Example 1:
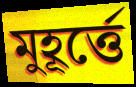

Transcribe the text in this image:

মুহূর্ত্তে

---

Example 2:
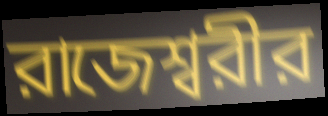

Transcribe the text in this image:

রাজেশ্বরীর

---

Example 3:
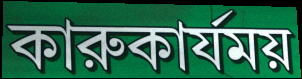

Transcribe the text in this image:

কারুকার্যময়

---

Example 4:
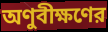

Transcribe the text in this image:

অণুবীক্ষণের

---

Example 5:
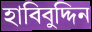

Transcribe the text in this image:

হাবিবুদ্দিন